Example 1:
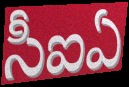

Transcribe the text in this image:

సీఐఏ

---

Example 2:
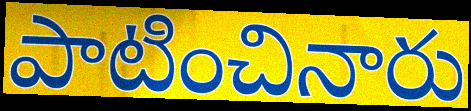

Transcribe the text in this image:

పాటించినారు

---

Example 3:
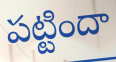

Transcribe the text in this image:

పట్టిందా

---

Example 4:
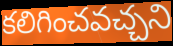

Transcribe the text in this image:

కలిగించవచ్చని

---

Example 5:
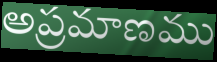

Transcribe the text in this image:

అప్రమాణము